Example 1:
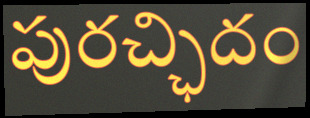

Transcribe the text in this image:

పురచ్ఛిదం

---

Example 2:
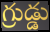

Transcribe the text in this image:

గ్రుడ్డు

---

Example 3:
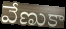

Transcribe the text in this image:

వేణుకా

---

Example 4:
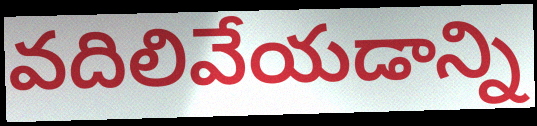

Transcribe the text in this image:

వదిలివేయడాన్ని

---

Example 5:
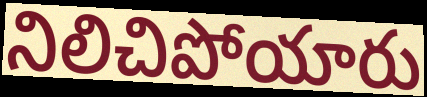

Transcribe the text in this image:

నిలిచిపోయారు